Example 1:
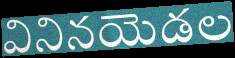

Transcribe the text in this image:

వినినయెడల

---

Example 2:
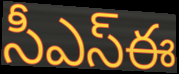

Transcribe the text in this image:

సీఎస్ఈ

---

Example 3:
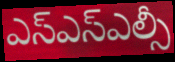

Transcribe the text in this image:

ఎస్ఎస్ఎల్సీ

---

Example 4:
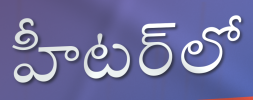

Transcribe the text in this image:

హీటర్‌లో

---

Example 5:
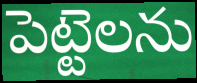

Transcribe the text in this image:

పెట్టెలను